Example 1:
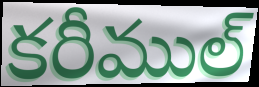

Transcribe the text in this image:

కరీముల్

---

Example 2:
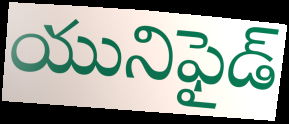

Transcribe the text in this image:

యునిఫైడ్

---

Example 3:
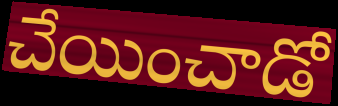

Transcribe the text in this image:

చేయించాడో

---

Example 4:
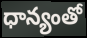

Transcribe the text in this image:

ధాన్యంతో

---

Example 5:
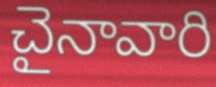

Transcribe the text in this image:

చైనావారి